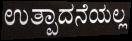
ಉತ್ಪಾದನೆಯಲ್ಲ